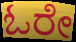
ಓರೇ